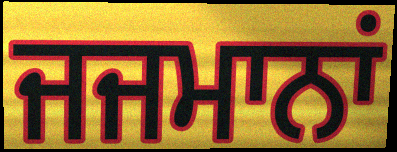
ਜਜਮਾਨਾਂ